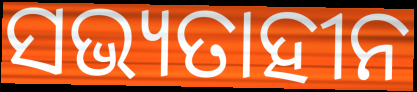
ସଭ୍ୟତାହୀନ